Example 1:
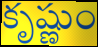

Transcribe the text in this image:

కృష్ణుం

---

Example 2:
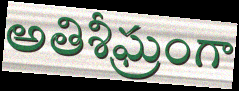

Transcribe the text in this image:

అతిశీఘ్రంగా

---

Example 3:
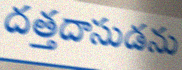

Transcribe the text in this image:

దత్తదాసుడను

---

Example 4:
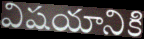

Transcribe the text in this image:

విషయానికి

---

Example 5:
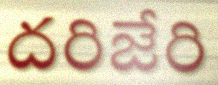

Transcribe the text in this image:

దరిజేరి